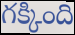
గక్కింది